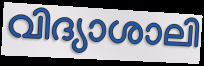
വിദ്യാശാലി